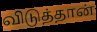
விடுத்தான்